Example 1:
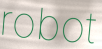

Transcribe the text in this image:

robot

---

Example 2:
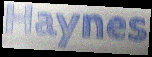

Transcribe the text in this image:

Haynes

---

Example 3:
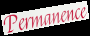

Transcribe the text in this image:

Permanence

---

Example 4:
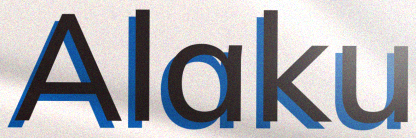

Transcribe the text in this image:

Alaku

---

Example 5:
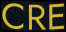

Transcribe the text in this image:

CRE